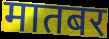
मातबर